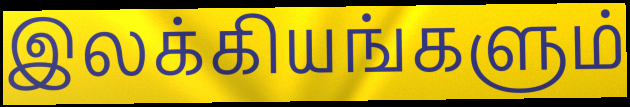
இலக்கியங்களும்